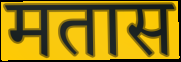
मतास